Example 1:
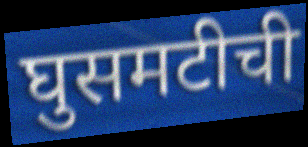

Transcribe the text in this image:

घुसमटीची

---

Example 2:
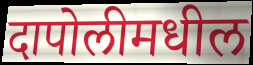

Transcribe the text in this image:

दापोलीमधील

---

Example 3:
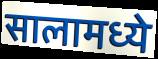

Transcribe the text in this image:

सालामध्ये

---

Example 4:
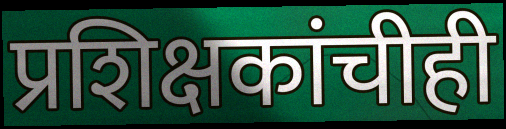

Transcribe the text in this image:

प्रशिक्षकांचीही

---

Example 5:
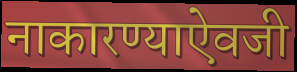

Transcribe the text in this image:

नाकारण्याऐवजी